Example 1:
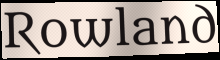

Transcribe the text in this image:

Rowland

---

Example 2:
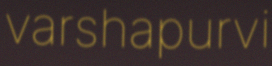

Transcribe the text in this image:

varshapurvi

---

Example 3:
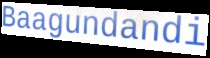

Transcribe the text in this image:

Baagundandi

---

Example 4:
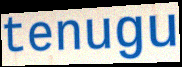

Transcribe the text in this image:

tenugu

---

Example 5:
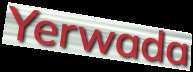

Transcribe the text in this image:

Yerwada